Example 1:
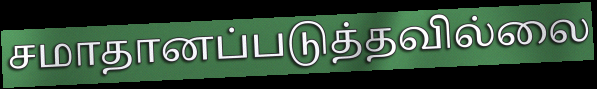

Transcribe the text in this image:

சமாதானப்படுத்தவில்லை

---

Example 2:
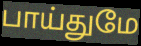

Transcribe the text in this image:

பாய்துமே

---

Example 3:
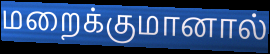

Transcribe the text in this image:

மறைக்குமானால்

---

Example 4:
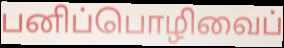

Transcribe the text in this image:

பனிப்பொழிவைப்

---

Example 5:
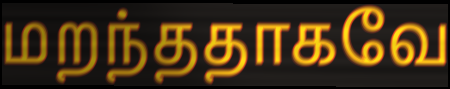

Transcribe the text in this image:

மறந்ததாகவே